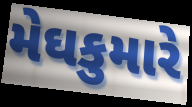
મેઘકુમારે